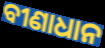
ବୀଣାଧାନ